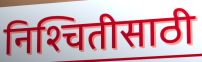
निश्चितीसाठी